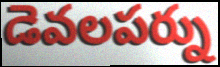
డెవలపర్ను